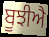
ਬੂਝੀਐ